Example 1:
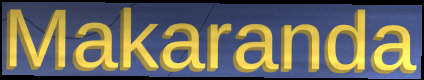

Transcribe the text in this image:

Makaranda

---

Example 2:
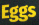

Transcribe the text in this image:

Eggs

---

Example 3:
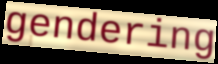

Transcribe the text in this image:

gendering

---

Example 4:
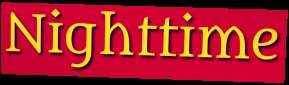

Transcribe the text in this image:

Nighttime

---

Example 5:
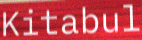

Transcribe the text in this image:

Kitabul